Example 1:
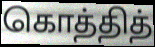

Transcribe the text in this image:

கொத்தித்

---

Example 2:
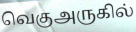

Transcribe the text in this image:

வெகுஅருகில்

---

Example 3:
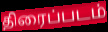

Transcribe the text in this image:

திரைப்படம்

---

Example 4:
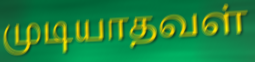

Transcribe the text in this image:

முடியாதவள்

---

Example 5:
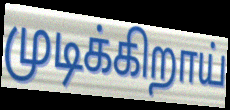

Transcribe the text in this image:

முடிக்கிறாய்